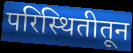
परिस्थितीतून